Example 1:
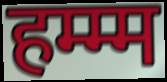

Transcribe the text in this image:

हम्म्म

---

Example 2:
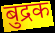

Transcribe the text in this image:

बुद्रक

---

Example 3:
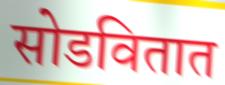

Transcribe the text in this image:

सोडवितात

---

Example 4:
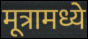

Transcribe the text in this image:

मूत्रामध्ये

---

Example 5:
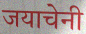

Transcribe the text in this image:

जयाचेनी